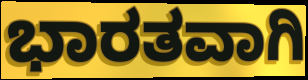
ಭಾರತವಾಗಿ